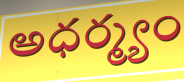
అధర్మ్యం